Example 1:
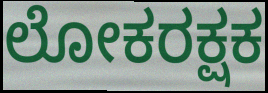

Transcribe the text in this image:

ಲೋಕರಕ್ಷಕ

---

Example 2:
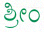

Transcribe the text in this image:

ಶ್ರೀಂ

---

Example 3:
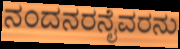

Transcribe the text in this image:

ನಂದನರನೈವರನು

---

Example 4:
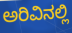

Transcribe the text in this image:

ಅರಿವಿನಲ್ಲಿ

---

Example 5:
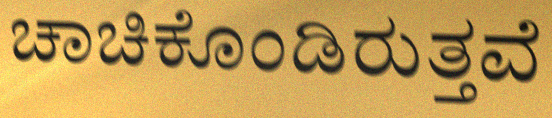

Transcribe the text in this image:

ಚಾಚಿಕೊಂಡಿರುತ್ತವೆ